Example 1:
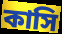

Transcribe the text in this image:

কাসি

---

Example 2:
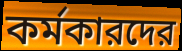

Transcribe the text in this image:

কর্মকারদের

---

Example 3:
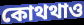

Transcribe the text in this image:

কোথথাও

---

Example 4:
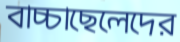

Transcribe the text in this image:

বাচ্চাছেলেদের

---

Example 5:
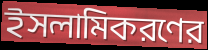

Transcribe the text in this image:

ইসলামিকরণের